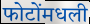
फोटोंमधली